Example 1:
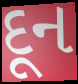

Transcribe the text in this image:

દૂન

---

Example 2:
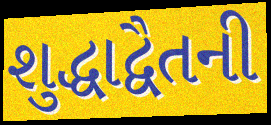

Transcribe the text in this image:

શુદ્ધાદ્વૈતની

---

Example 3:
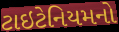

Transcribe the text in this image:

ટાઇટેનિયમનો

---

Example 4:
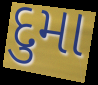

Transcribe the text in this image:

દુમા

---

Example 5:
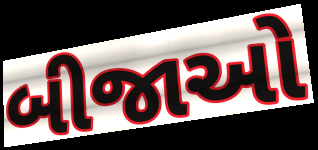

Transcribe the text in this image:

બીજાઓ